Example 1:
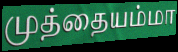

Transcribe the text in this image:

முத்தையம்மா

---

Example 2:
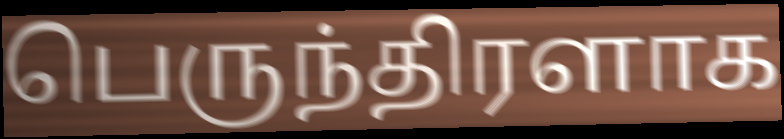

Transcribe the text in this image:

பெருந்திரளாக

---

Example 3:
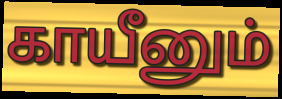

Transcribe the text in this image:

காயீனும்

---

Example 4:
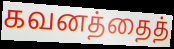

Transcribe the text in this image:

கவனத்தைத்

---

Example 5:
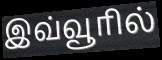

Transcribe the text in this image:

இவ்வூரில்